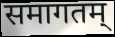
समागतम्